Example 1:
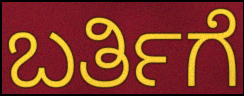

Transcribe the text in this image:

ಬರ್ತಿಗೆ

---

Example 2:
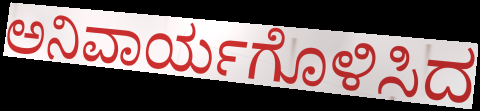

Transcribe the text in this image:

ಅನಿವಾರ್ಯಗೊಳಿಸಿದ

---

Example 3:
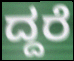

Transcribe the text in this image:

ದ್ದರೆ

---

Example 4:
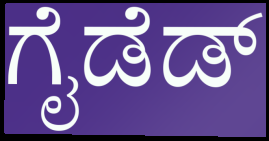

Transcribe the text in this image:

ಗೈಡೆಡ್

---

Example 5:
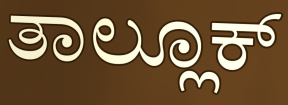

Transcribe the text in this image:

ತಾಲ್ಲೂಕ್